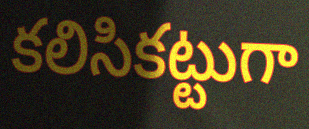
కలిసికట్టుగా